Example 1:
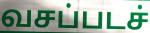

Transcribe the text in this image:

வசப்படச்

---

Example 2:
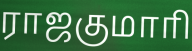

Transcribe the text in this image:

ராஜகுமாரி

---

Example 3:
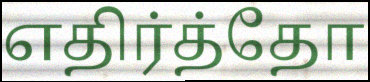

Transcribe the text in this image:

எதிர்த்தோ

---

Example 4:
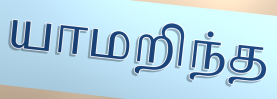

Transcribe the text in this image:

யாமறிந்த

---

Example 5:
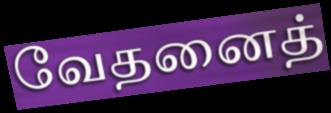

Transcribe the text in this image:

வேதனைத்